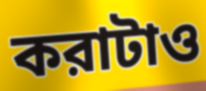
করাটাও